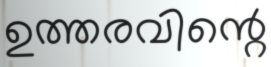
ഉത്തരവിന്റെ